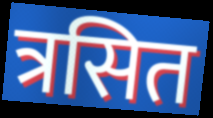
त्रसित